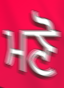
ਮਣੋ